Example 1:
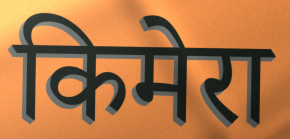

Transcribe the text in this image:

किमेरा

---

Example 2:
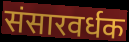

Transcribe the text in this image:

संसारवर्धक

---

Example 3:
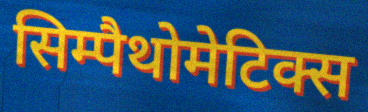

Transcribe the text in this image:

सिम्पैथोमेटिक्स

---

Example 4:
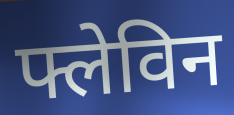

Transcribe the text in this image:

फ्लेविन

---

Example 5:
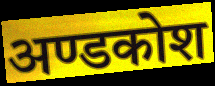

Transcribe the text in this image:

अण्डकोश